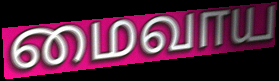
மைவாய